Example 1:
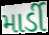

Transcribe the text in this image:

માર્ડી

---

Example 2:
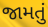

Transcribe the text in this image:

જામતું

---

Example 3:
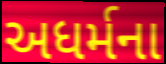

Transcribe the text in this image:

અધર્મના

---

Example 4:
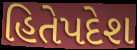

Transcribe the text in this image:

હિતેપદેશ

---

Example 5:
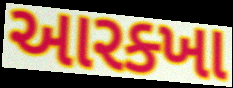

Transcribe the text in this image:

આરક્ખા